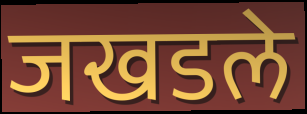
जखडले